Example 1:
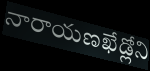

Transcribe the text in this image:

నారాయణఖేడ్లోని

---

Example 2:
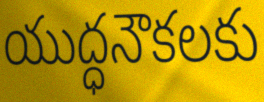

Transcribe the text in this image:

యుద్ధనౌకలకు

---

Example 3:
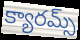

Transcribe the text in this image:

క్యారమ్స్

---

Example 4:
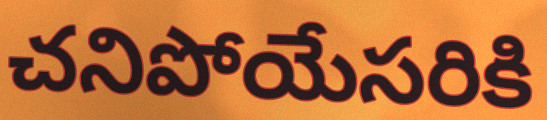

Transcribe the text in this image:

చనిపోయేసరికి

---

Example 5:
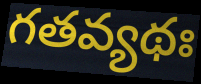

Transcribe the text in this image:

గతవ్యథః